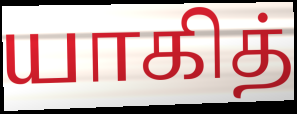
யாகித்